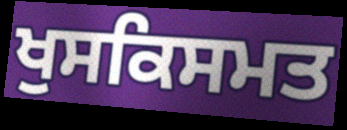
ਖੁਸਕਿਸਮਤ